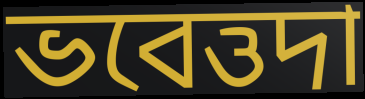
ভবেত্তদা